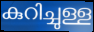
കുറിച്ചുള്ള